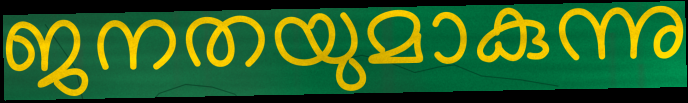
ജനതയുമാകുന്നു